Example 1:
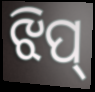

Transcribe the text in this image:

ଝିପ୍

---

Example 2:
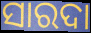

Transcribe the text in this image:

ସାରଦା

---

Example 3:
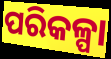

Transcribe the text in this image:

ପରିକଳ୍ପା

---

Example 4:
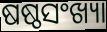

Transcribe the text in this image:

ଷଷ୍ଠସଂଖ୍ୟା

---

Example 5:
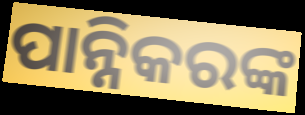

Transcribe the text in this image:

ପାନ୍ନିକରଙ୍କ